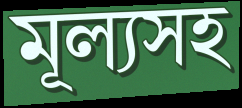
মূল্যসহ